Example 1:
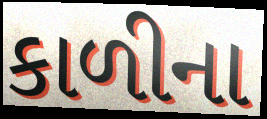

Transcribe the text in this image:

કાળીના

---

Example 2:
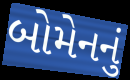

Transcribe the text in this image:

બોમેનનું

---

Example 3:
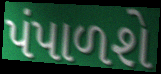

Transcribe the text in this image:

પંપાળશે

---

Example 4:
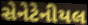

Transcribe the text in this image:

સેનેટેનીયલ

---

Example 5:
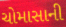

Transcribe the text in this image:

ચોમાસાની